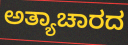
ಅತ್ಯಾಚಾರದ